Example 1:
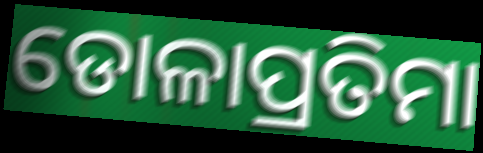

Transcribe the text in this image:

ଡୋଳାପ୍ରତିମା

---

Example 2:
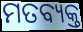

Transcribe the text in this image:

ମତବ୍ୟକ୍ତ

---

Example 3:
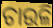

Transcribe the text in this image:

ଚାଉଳି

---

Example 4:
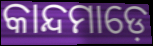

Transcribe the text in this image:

କାନ୍ଦମାଡ଼େ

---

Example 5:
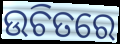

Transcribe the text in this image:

ଉଚିତରେ